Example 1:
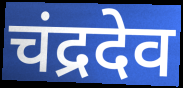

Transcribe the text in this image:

चंद्रदेव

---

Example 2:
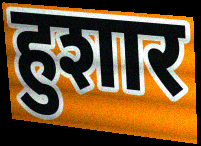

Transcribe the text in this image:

हुशार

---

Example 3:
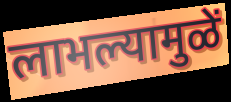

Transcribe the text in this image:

लाभल्यामुळें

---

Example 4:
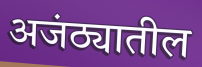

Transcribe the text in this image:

अजंठ्यातील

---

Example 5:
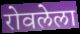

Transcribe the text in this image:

रोवलेला